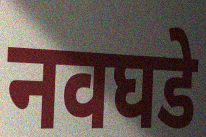
नवघडे